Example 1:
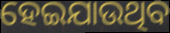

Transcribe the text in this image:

ହେଇଯାଉଥିବ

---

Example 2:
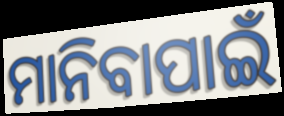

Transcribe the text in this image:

ମାନିବାପାଇଁ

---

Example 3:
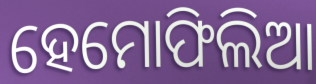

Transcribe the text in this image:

ହେମୋଫିଲିଆ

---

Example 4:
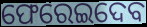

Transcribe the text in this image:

ଫେରେଇଦେବ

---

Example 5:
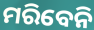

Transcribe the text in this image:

ମରିବେନି